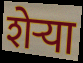
शेऱ्या